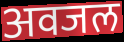
अवजल